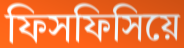
ফিসফিসিয়ে